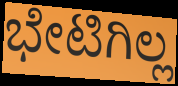
ಭೇಟಿಗಿಲ್ಲ